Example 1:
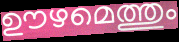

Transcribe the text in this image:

ഊഴമെത്തും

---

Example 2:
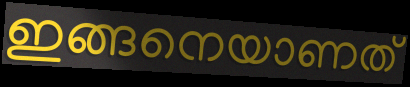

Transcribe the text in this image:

ഇങ്ങനെയാണത്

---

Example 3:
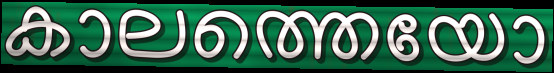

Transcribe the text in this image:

കാലത്തെയോ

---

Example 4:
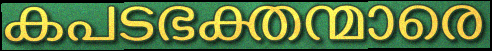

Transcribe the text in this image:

കപടഭക്തന്മാരെ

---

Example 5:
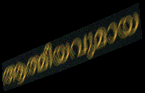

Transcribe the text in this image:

ആത്മീയവുമായ